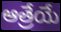
ఆత్రేయే